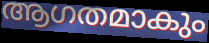
ആഗതമാകും